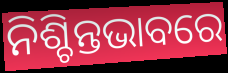
ନିଶ୍ଚିନ୍ତଭାବରେ